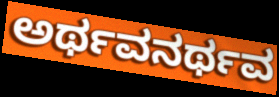
ಅರ್ಥವನರ್ಥವ